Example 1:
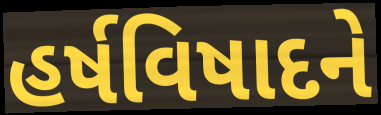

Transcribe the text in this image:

હર્ષવિષાદને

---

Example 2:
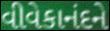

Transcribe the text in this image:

વીવેકાનંદને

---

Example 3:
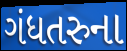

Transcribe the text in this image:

ગંધતરુના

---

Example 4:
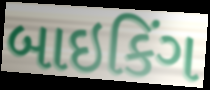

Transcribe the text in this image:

બાઇકિંગ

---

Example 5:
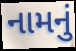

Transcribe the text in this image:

નામનું